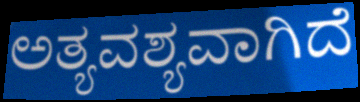
ಅತ್ಯವಶ್ಯವಾಗಿದೆ